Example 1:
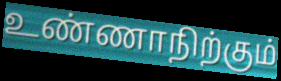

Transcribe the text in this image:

உண்ணாநிற்கும்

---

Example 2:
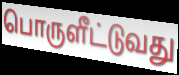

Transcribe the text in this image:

பொருளீட்டுவது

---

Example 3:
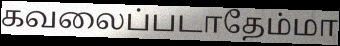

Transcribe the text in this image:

கவலைப்படாதேம்மா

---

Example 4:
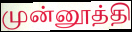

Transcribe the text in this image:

முன்னூத்தி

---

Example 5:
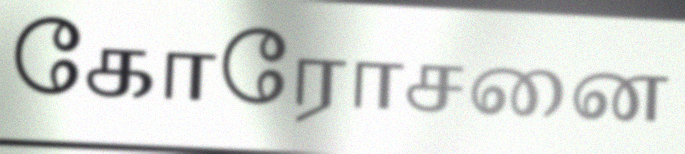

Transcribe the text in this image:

கோரோசனை